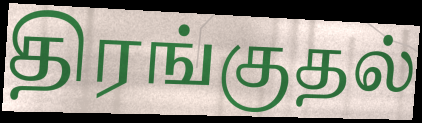
திரங்குதல்